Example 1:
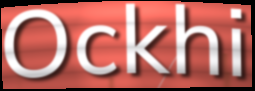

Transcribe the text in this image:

Ockhi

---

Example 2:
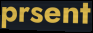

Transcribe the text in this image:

prsent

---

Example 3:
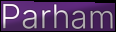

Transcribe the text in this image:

Parham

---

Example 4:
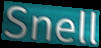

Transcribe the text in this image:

Snell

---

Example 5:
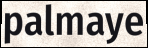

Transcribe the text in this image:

palmaye